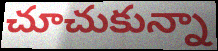
చూచుకున్నా